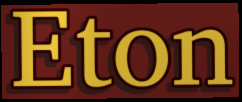
Eton